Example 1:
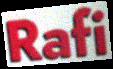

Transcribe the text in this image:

Rafi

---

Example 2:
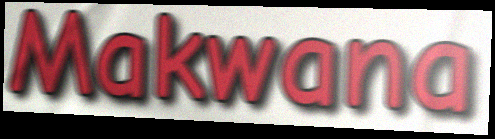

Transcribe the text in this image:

Makwana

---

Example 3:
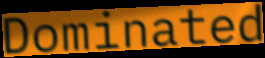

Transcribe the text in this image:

Dominated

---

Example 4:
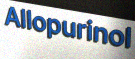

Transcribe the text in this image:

Allopurinol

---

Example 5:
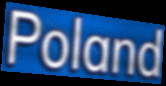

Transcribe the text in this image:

Poland